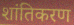
शांतिकरण